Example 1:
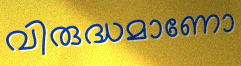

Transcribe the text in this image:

വിരുദ്ധമാണോ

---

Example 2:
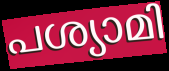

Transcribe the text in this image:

പശ്യാമി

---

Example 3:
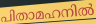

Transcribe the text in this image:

പിതാമഹനിൽ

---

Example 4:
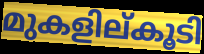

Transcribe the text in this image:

മുകളില്കൂടി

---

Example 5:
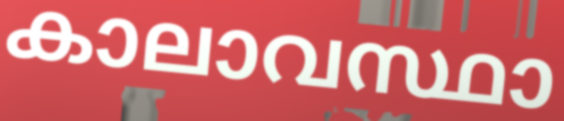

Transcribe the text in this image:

കാലാവസ്ഥാ